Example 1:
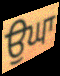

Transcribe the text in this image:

ਉਘਾ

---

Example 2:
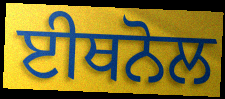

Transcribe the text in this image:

ਈਥਨੋਲ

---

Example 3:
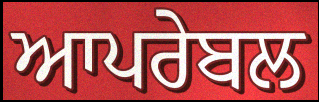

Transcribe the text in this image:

ਆਪਰੇਬਲ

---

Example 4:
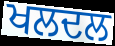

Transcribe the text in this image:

ਖਲਦਲ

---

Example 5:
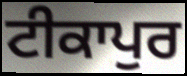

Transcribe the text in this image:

ਟੀਕਾਪੁਰ